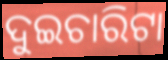
ଦୁଇଚାରିଟା